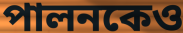
পালনকেও